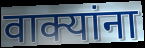
वाक्यांना